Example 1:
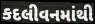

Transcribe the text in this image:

કદલીવનમાંથી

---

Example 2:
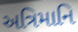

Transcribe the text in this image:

અત્રિમાનિ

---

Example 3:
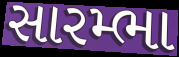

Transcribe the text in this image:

સારમ્ભા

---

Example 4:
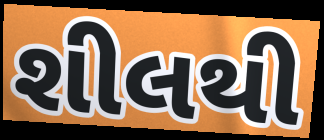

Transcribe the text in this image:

શીલથી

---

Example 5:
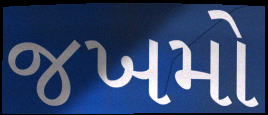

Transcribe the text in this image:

જખમો